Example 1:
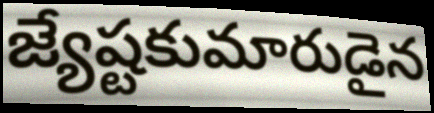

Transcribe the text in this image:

జ్యేష్టకుమారుడైన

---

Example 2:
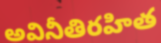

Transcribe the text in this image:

అవినీతిరహిత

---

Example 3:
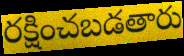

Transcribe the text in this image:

రక్షించబడతారు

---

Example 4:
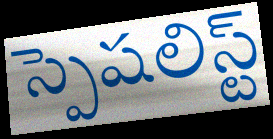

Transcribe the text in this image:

స్పెషలిస్ట్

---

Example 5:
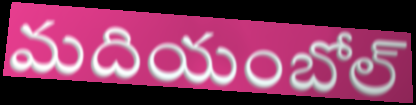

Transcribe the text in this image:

మదియంబోల్